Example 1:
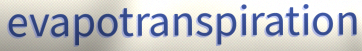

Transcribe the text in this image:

evapotranspiration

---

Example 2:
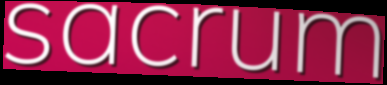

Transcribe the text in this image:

sacrum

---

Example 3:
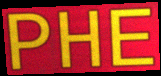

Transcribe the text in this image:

PHE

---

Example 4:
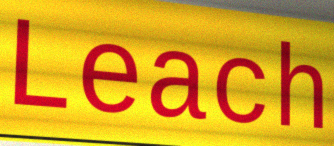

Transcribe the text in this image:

Leach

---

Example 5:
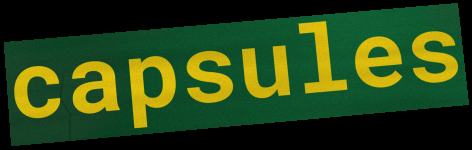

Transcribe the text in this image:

capsules